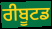
ਰੀਬੂਟਡ